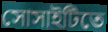
সোসাইটিতে